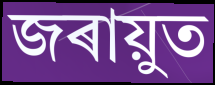
জৰায়ুত